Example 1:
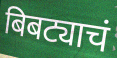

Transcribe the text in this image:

बिबट्याचं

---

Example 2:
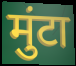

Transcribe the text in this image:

मुंटा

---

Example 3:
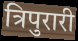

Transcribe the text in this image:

त्रिपुरारी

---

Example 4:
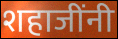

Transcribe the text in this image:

शहाजींनी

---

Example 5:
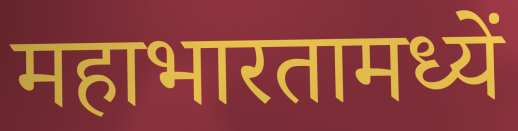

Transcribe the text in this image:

महाभारतामध्यें